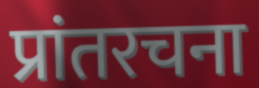
प्रांतरचना